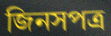
জিনসপত্র